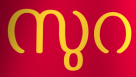
സുറ